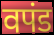
वपंड